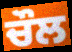
ਚੌਲ